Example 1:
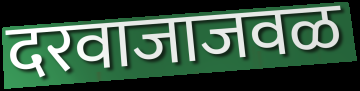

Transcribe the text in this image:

दरवाजाजवळ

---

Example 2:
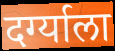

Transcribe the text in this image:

दर्ग्याला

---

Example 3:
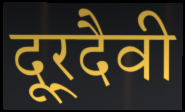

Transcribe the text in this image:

दूर्दैवी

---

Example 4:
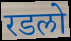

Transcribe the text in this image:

रडलो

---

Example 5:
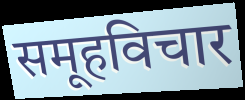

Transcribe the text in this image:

समूहविचार